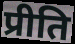
प्रीति